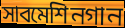
সাবমেশিনগান